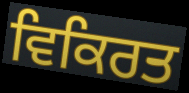
ਵਿਕਿਰਤ